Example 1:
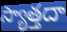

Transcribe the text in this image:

స్యాత్తదా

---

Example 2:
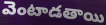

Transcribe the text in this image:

వెంటాడతాయి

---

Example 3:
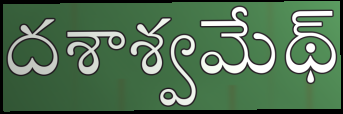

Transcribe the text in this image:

దశాశ్వమేథ్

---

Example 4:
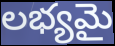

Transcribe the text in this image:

లభ్యమై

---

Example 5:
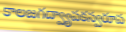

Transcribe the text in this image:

కాలజగద్వ్యాపకస్వరూప